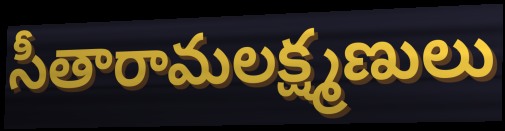
సీతారామలక్ష్మణులు